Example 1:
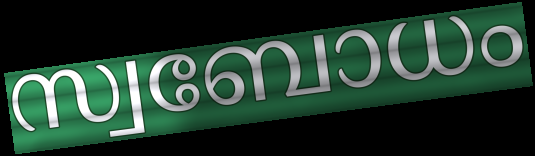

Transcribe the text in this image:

സ്വബോധം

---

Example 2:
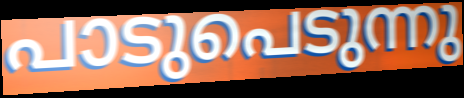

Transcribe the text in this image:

പാടുപെടുന്നു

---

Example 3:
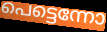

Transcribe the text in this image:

പെട്ടെന്നോ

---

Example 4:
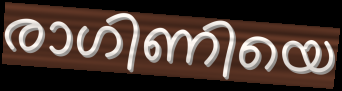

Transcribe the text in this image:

രാഗിണിയെ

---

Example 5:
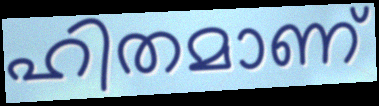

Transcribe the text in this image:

ഹിതമാണ്